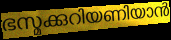
ഭസ്മക്കുറിയണിയാൻ